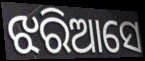
ଝରିଆସେ